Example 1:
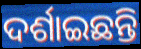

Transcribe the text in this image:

ଦର୍ଶାଇଛନ୍ତି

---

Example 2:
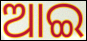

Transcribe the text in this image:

ଆଇ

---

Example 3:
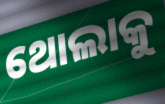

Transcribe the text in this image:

ଥୋଲାକୁ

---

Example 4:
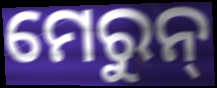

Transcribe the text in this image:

ମେରୁନ୍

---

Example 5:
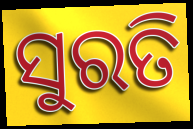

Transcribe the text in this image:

ସୁରତି